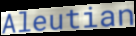
Aleutian